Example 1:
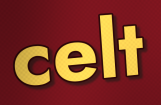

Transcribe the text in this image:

celt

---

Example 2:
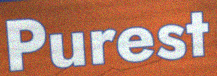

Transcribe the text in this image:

Purest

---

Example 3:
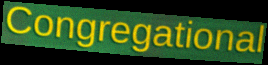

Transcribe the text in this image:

Congregational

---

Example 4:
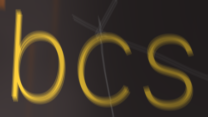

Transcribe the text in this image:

bcs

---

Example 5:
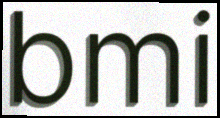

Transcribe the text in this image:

bmi